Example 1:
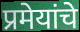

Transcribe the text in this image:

प्रमेयांचे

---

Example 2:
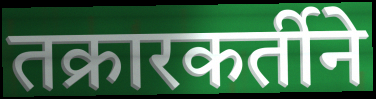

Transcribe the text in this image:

तक्रारकर्तीने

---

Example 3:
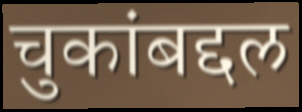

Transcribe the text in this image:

चुकांबद्दल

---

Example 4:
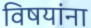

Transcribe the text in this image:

विषयांना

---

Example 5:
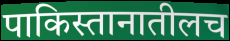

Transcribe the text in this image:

पाकिस्तानातीलच